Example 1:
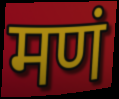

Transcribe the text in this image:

मणं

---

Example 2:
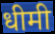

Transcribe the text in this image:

धीमी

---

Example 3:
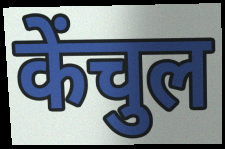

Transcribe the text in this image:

केंचुल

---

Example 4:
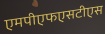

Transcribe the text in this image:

एमपीएफएसटीएस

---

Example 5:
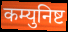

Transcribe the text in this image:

कम्युनिष्ट